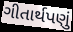
ગીતાર્થપણું